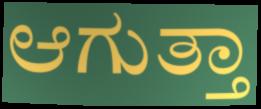
ಆಗುತ್ತಾ